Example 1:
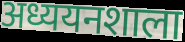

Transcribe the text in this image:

अध्ययनशाला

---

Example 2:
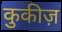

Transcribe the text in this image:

कुकीज़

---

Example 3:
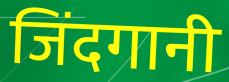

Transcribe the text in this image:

जिंदगानी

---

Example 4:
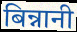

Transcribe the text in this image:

बिन्नानी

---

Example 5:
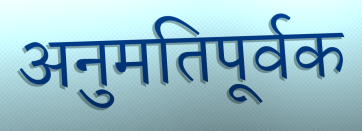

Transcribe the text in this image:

अनुमतिपूर्वक